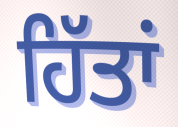
ਹਿੱਤਾਂ